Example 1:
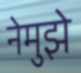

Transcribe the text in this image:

नेमुझे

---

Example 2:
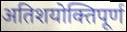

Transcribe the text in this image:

अतिशयोक्तिपूर्ण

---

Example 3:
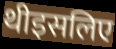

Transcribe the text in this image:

थीइसलिए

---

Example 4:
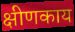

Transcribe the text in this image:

क्षीणकाय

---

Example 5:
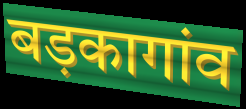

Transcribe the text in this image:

बड़कागांव